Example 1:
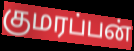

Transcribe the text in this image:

குமரப்பன்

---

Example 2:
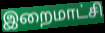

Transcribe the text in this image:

இறைமாட்சி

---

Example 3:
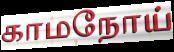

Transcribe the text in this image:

காமநோய்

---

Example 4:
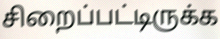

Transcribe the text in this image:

சிறைப்பட்டிருக்க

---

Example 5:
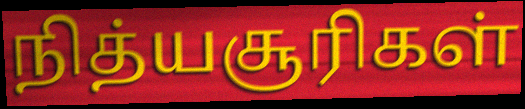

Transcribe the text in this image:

நித்யசூரிகள்